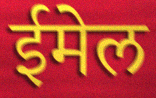
ईमेल